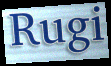
Rugi